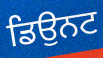
ਡਿਉਨਟ